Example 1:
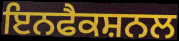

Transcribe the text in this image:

ਇਨਫੈਕਸ਼ਨਲ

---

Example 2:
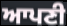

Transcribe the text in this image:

ਆਪਣੀ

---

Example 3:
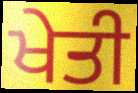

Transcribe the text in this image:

ਖੇਤੀ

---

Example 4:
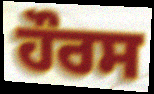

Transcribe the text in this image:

ਹੌਰਸ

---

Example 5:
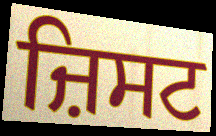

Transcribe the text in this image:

ਜ਼ਿਸਟ